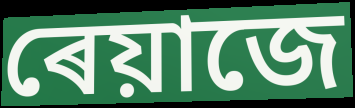
ৰেয়াজে